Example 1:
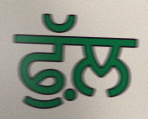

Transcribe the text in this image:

ਫੁੱਲ਼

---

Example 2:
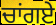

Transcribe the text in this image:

ਚਾਂਗਏ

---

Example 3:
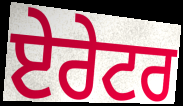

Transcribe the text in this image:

ਏਰੇਟਰ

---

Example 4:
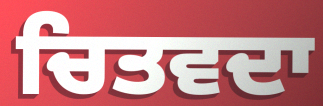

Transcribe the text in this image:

ਚਿਤਵਦਾ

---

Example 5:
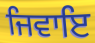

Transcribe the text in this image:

ਜਿਵਾਇ